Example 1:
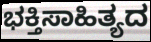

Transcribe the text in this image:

ಭಕ್ತಿಸಾಹಿತ್ಯದ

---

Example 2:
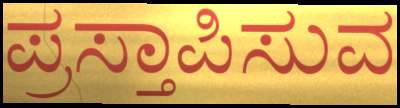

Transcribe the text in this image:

ಪ್ರಸ್ತಾಪಿಸುವ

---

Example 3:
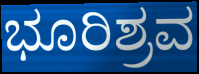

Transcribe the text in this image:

ಭೂರಿಶ್ರವ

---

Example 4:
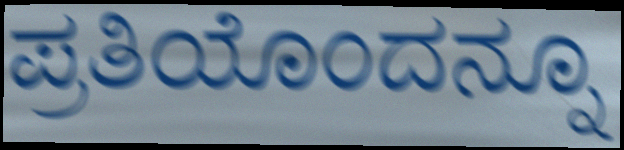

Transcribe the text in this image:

ಪ್ರತಿಯೊಂದನ್ನೂ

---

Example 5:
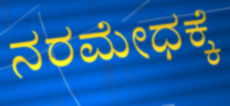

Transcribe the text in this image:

ನರಮೇಧಕ್ಕೆ